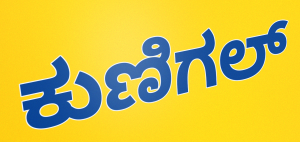
ಕುಣಿಗಲ್